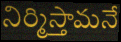
నిర్మిస్తామనే